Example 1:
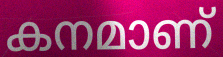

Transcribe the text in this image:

കനമാണ്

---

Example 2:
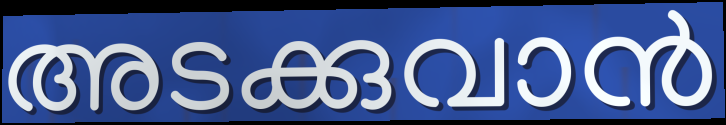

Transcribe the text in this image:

അടക്കുവാൻ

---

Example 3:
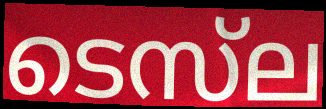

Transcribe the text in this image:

ടെസ്‌ല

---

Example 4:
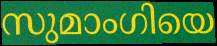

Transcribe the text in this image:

സുമാംഗിയെ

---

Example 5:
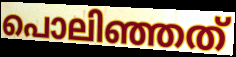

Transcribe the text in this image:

പൊലിഞ്ഞത്